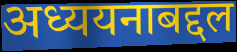
अध्ययनाबद्दल